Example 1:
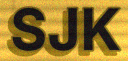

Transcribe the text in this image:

SJK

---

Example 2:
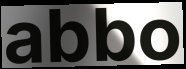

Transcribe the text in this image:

abbo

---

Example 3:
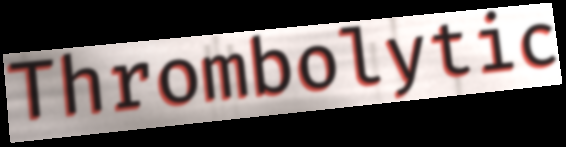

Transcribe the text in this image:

Thrombolytic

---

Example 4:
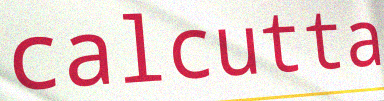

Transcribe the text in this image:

calcutta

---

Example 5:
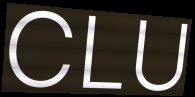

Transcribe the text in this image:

CLU